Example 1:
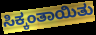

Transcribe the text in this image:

ಸಿಕ್ಕಂತಾಯಿತು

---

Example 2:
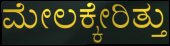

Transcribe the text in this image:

ಮೇಲಕ್ಕೇರಿತ್ತು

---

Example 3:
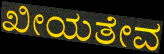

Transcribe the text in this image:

ಖೀಯತೇವ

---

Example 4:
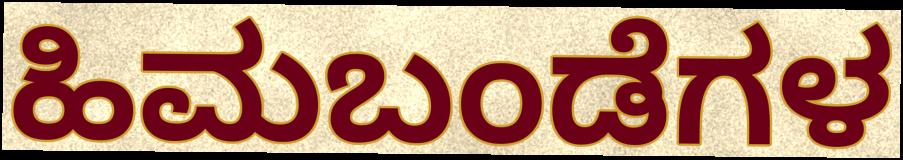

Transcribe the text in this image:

ಹಿಮಬಂಡೆಗಳ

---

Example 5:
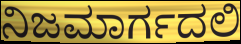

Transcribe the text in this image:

ನಿಜಮಾರ್ಗದಲಿ